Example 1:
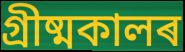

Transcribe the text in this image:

গ্ৰীষ্মকালৰ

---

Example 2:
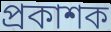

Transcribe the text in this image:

প্ৰকাশক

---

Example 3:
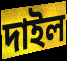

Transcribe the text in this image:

দাইল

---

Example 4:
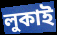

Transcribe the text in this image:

লুকাই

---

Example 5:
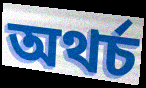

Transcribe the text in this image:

অথৰ্চ